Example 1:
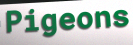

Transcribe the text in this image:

Pigeons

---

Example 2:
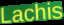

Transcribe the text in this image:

Lachis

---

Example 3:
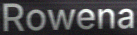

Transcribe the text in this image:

Rowena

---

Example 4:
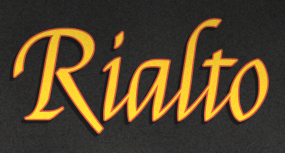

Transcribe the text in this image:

Rialto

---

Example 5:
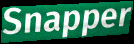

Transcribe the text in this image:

Snapper